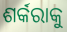
ଶର୍କରାକୁ